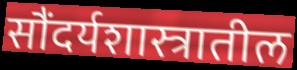
सौंदर्यशास्त्रातील